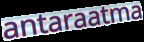
antaraatma